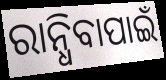
ରାନ୍ଧିବାପାଇଁ